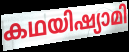
കഥയിഷ്യാമി